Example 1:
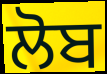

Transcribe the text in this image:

ਲੋਬ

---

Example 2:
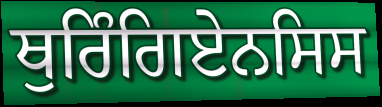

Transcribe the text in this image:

ਥੁਰਿੰਗਿਏਨਸਿਸ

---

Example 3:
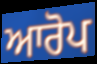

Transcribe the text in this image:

ਆਰੋਪ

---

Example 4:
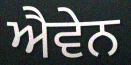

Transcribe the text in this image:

ਐਵੇਨ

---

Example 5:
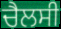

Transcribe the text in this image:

ਚੈਲਸੀ